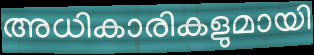
അധികാരികളുമായി